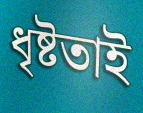
ধৃষ্টতাই